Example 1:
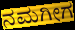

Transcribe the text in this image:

ನಮಗೀಗ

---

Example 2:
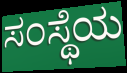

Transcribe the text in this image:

ಸಂಸ್ಥೆಯ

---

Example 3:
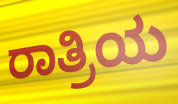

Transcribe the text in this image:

ರಾತ್ರಿಯ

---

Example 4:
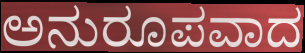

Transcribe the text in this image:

ಅನುರೂಪವಾದ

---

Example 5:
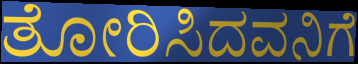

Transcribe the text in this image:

ತೋರಿಸಿದವನಿಗೆ